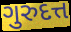
ગુરુદત્ત